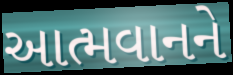
આત્મવાનને